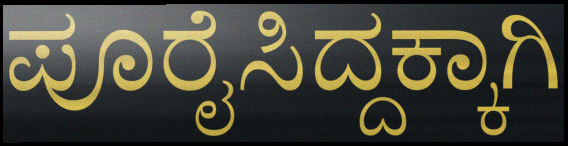
ಪೂರೈಸಿದ್ದಕ್ಕಾಗಿ